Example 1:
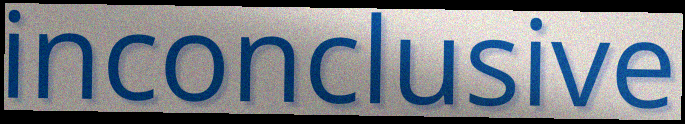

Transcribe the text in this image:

inconclusive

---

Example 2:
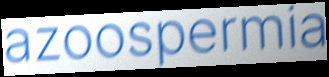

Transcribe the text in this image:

azoospermia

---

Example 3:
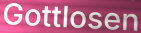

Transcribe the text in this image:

Gottlosen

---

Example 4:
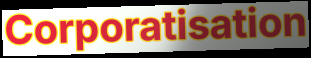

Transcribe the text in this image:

Corporatisation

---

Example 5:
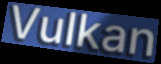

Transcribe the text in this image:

Vulkan